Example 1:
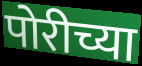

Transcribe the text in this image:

पोरीच्या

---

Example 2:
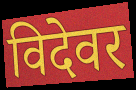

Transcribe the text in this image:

विदेवर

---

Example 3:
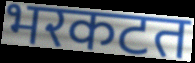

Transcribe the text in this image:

भरकटत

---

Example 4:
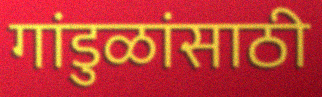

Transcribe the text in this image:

गांडुळांसाठी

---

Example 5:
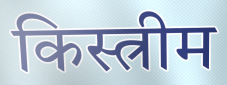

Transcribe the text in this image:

किस्त्रीम